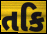
તકિ